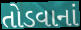
તોડવાનાં